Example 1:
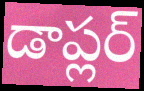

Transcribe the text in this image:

డాప్లర్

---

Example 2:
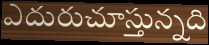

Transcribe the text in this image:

ఎదురుచూస్తున్నది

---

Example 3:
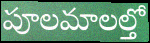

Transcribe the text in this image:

పూలమాలల్తో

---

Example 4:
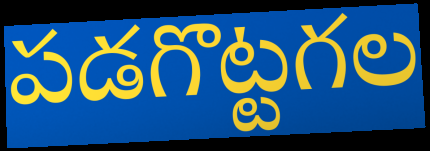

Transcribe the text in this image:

పడగొట్టగల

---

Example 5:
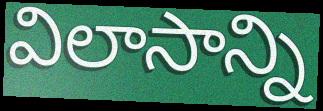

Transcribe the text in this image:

విలాసాన్ని